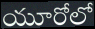
యూరోలో